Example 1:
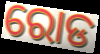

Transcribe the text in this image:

ରୋଡ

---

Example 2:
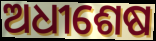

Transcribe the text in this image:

ଅଧୀଶେଷ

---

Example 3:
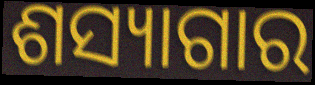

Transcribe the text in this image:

ଶସ୍ୟାଗାର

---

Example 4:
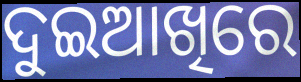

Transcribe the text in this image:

ଦୁଇଆଖିରେ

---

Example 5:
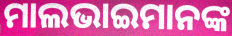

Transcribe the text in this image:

ମାଲଭାଇମାନଙ୍କ